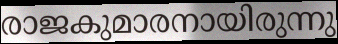
രാജകുമാരനായിരുന്നു